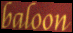
baloon